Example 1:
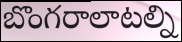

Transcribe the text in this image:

బొంగరాలాటల్ని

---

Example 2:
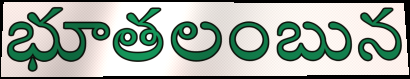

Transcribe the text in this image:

భూతలంబున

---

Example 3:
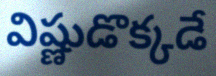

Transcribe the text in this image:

విష్ణుడొక్కడే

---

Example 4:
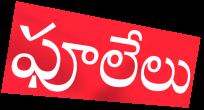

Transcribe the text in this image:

ఫూలేలు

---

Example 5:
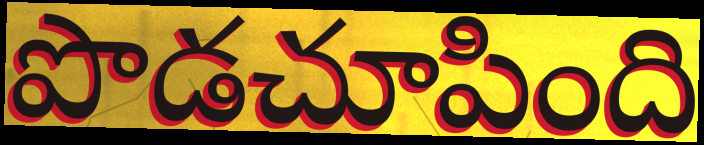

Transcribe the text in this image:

పొడచూపింది